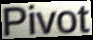
Pivot